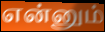
என்னும்